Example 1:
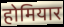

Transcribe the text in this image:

होमियार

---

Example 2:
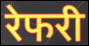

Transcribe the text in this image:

रेफरी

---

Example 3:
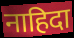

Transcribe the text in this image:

नाहिदा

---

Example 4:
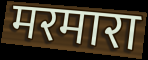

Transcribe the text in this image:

मरमारा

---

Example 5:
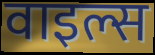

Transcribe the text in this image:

वाइल्स